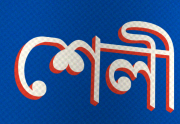
শেলী